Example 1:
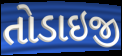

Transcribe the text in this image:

તોડાઇજી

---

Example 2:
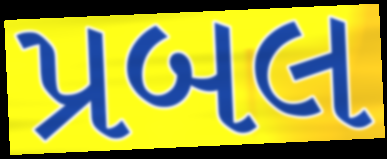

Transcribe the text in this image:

પ્રબલ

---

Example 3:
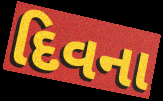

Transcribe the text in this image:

દિવના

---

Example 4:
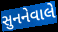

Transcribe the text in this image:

સુનનેવાલે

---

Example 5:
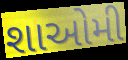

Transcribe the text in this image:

શાઓમી